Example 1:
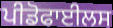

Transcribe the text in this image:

ਪੀਡੋਫਾਈਲਸ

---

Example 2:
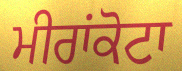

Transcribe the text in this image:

ਮੀਰਾਂਕੋਟਾ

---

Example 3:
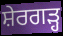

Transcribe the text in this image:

ਸ਼ੇਰਗੜ੍ਹ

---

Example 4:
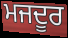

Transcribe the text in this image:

ਮਜਦੂਰ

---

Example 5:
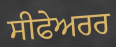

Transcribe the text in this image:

ਸੀਫੇਅਰਰ